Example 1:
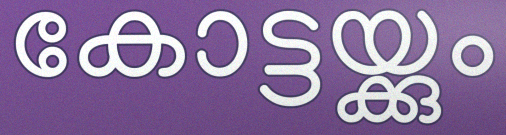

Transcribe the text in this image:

കോട്ടയ്ക്കും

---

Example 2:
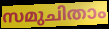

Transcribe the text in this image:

സമുചിതാം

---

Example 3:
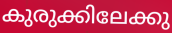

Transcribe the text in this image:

കുരുക്കിലേക്കു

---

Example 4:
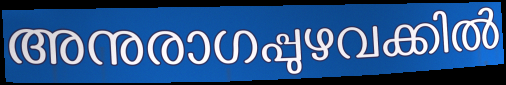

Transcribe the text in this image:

അനുരാഗപ്പുഴവക്കിൽ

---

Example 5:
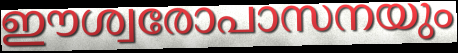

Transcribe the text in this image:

ഈശ്വരോപാസനയും